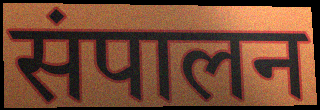
संपालन